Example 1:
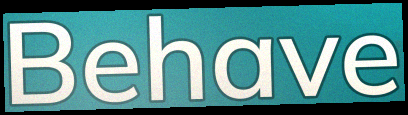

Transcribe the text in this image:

Behave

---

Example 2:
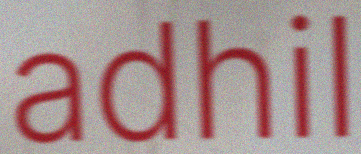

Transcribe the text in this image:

adhil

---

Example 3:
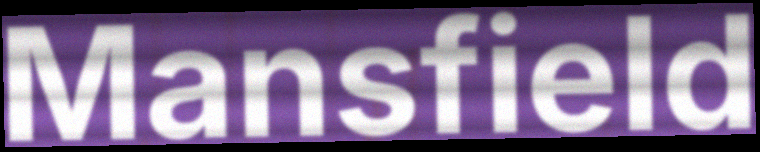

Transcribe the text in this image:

Mansfield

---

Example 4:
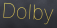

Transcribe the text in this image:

Dolby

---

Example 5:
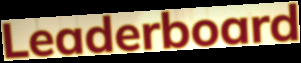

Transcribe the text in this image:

Leaderboard